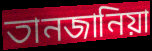
তানজানিয়া